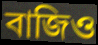
বাজিও